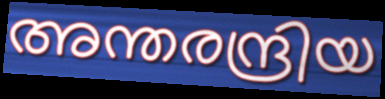
അന്തരന്ദ്രിയ